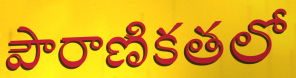
పౌరాణికతలో